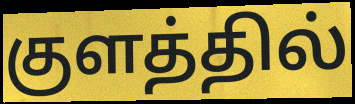
குளத்தில்